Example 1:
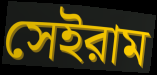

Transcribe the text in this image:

সেইরাম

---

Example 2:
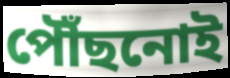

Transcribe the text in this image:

পৌঁছনোই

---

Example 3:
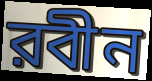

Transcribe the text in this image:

রবীন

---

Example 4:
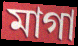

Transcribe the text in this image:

মাগা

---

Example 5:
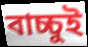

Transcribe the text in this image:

বাচ্চুই